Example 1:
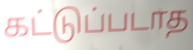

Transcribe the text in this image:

கட்டுப்படாத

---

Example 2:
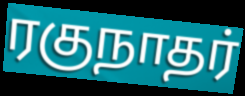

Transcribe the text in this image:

ரகுநாதர்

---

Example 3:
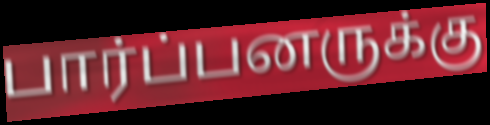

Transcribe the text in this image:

பார்ப்பனருக்கு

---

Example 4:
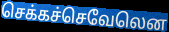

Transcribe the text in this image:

செக்கச்செவேலென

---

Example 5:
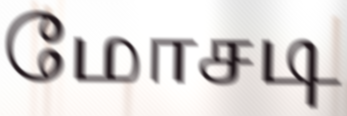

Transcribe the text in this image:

மோசடி